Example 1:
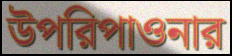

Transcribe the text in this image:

উপরিপাওনার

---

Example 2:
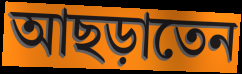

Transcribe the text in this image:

আছড়াতেন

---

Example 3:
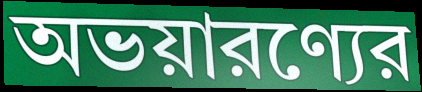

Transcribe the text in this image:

অভয়ারণ্যের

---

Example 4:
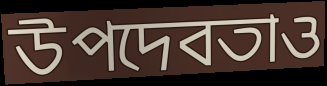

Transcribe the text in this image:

উপদেবতাও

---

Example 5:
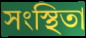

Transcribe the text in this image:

সংস্থিতা